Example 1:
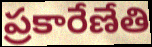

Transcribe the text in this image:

ప్రకారేణేతి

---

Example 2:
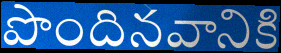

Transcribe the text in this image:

పొందినవానికి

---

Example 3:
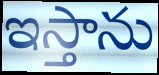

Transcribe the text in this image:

ఇస్తాను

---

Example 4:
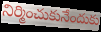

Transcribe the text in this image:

నిర్మించుకునేందుకు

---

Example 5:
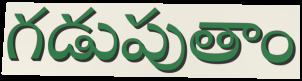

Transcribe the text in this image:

గడుపుతాం